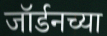
जॉर्डनच्या